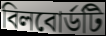
বিলবোর্ডটি